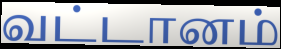
வட்டானம்